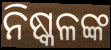
ନିଷ୍କଳଙ୍କ